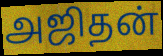
அஜிதன்